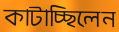
কাটাচ্ছিলেন